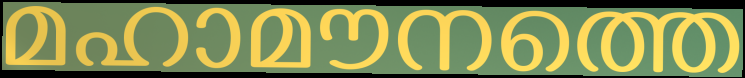
മഹാമൗനത്തെ